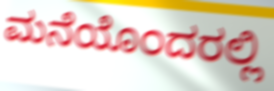
ಮನೆಯೊಂದರಲ್ಲಿ